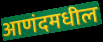
आणंदमधील